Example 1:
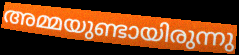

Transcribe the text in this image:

അമ്മയുണ്ടായിരുന്നു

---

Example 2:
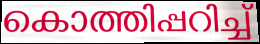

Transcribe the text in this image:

കൊത്തിപ്പറിച്ച്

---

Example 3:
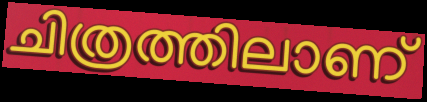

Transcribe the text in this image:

ചിത്രത്തിലാണ്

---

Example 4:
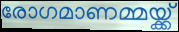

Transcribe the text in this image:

രോഗമാണമ്മയ്ക്ക്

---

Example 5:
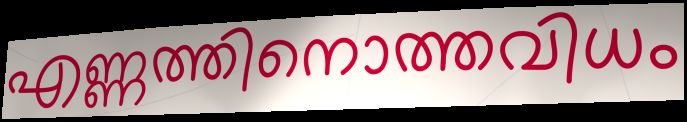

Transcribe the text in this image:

എണ്ണത്തിനൊത്തവിധം